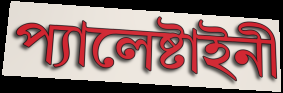
প্যালেষ্টাইনী